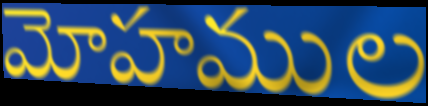
మోహముల